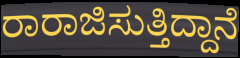
ರಾರಾಜಿಸುತ್ತಿದ್ದಾನೆ